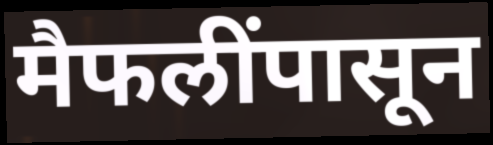
मैफलींपासून